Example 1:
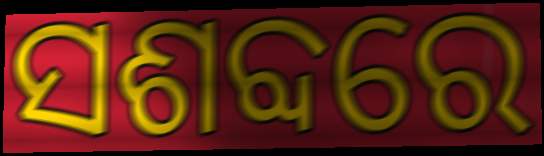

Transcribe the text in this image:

ସଶବ୍ଦରେ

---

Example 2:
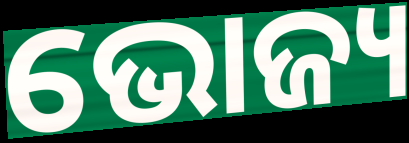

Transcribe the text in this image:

ଭୋଜ୍ୟ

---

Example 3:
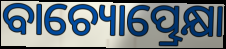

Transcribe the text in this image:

ବାଚ୍ୟୋତ୍ପ୍ରେକ୍ଷା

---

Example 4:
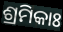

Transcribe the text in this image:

ଶ୍ରମିକାଃ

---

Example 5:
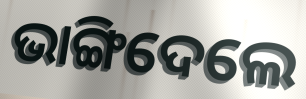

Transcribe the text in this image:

ଭାଙ୍ଗିଦେଲେ